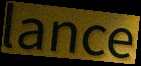
lance